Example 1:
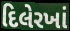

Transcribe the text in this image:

દિલેરખાં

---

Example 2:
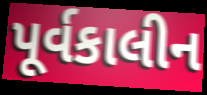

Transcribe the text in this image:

પૂર્વકાલીન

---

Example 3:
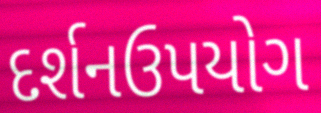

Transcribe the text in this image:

દર્શનઉપયોગ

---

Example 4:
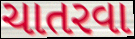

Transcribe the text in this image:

ચાતરવા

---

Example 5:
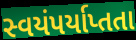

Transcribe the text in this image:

સ્વયંપર્યાપ્તતા